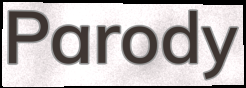
Parody